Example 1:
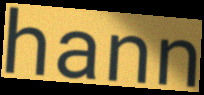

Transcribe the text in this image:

hann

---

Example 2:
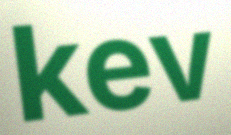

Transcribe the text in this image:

kev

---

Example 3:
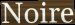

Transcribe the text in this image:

Noire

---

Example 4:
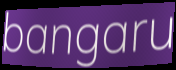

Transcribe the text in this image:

bangaru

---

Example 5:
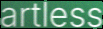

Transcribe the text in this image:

artless